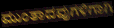
ಮುಂತಾದವುಗಳಿಗಾಗಿ